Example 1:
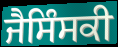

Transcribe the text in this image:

ਜੈਸਿੰਸਕੀ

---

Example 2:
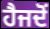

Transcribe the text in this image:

ਹੈਜਦੋਂ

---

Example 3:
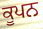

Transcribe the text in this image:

ਕੂਪਨ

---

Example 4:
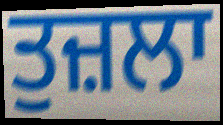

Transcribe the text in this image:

ਤੁਜ਼ਲਾ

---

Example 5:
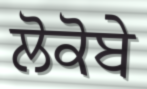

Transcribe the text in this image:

ਲੋਕੋਬੇ